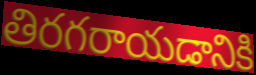
తిరగరాయడానికి